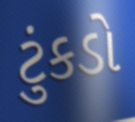
ટુંકડો